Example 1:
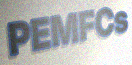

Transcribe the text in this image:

PEMFCs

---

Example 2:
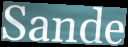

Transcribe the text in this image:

Sande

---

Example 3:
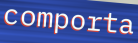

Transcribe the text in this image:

comporta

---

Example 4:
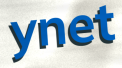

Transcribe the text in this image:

ynet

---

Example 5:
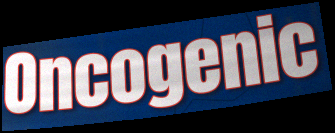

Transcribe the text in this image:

Oncogenic